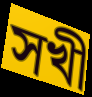
সখী